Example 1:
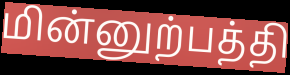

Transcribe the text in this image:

மின்னுற்பத்தி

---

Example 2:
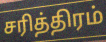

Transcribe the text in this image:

சரித்திரம்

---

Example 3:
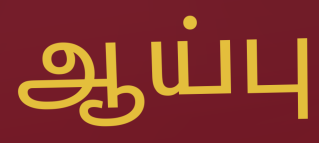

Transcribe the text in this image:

ஆய்பு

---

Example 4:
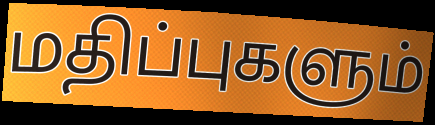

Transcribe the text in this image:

மதிப்புகளும்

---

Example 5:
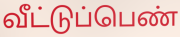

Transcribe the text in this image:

வீட்டுப்பெண்